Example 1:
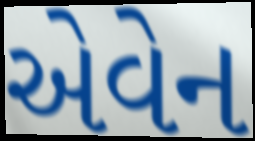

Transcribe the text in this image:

એવેન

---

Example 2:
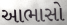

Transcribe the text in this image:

આભાસો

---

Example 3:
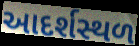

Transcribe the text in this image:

આદર્શસ્થળ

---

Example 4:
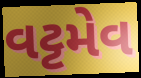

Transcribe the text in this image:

વટ્ટમેવ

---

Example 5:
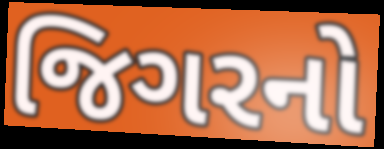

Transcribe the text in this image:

જિગરનો